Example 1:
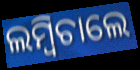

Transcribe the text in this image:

ଲମ୍ବିଚାଲେ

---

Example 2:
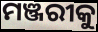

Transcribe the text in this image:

ମଞ୍ଜରୀକୁ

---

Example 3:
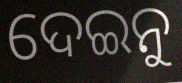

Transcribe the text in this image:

ଦେଇନୁ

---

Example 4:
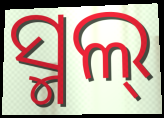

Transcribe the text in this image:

ସ୍ମଲ୍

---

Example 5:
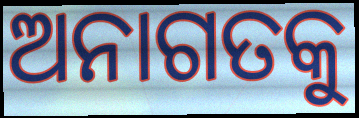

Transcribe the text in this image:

ଅନାଗତକୁ